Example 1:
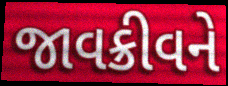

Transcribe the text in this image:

જાવક્રીવને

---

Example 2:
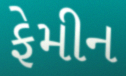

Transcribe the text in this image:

ફેમીન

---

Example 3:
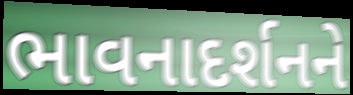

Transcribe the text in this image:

ભાવનાદર્શનને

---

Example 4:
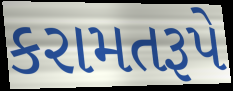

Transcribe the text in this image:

કરામતરૂપે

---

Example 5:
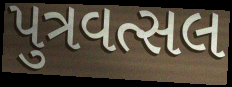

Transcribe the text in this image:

પુત્રવત્સલ